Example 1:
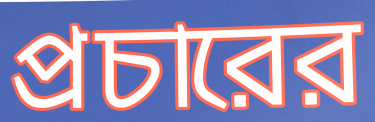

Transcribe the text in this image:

প্রচারের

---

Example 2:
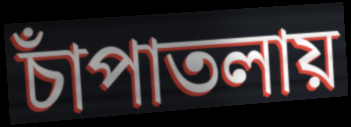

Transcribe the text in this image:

চাঁপাতলায়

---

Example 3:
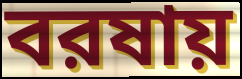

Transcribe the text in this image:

বরষায়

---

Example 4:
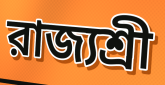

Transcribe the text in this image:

রাজ্যশ্রী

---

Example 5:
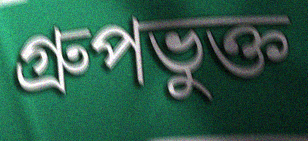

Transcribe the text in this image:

গ্রুপভুক্ত